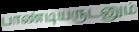
பாண்டியருடனும்